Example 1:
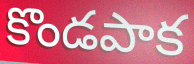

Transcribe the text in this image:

కొండపాక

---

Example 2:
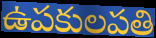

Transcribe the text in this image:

ఉపకులపతి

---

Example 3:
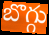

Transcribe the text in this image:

బొగ్గు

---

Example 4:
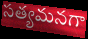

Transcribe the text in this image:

సత్యమనగా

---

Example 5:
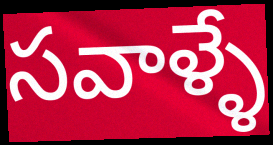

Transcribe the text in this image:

సవాళ్ళే